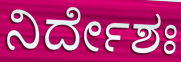
ನಿರ್ದೇಶಃ